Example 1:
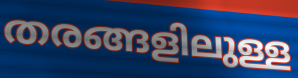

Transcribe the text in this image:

തരങ്ങളിലുള്ള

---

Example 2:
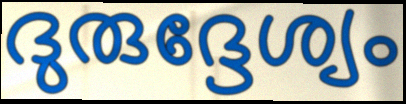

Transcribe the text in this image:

ദുരുദ്ദേശ്യം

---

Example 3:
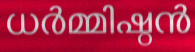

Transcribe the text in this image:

ധർമ്മിഷ്ഠൻ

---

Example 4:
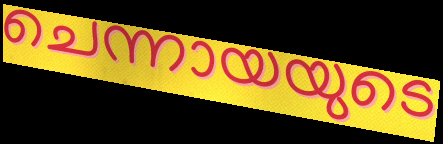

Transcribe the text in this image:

ചെന്നായയുടെ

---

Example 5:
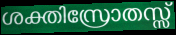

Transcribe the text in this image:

ശക്തിസ്രോതസ്സ്